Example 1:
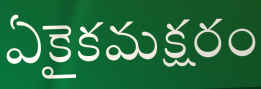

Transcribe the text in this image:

ఏకైకమక్షరం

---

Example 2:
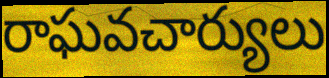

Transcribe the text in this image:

రాఘవచార్యులు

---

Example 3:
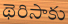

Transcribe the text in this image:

థెరిసాకు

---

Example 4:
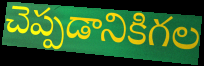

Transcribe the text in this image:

చెప్పడానికిగల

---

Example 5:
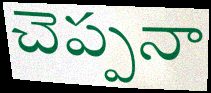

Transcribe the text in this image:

చెప్పనా